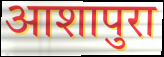
आशापुरा